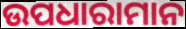
ଉପଧାରାମାନ